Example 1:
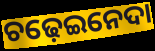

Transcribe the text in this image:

ଚଢ଼େଇନେଦା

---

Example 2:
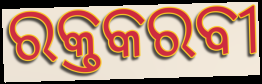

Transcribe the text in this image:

ରକ୍ତକରବୀ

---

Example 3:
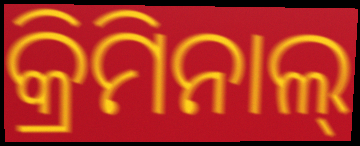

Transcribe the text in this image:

କ୍ରିମିନାଲ୍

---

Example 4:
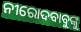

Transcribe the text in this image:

ନୀରୋଦବାବୁଙ୍କୁ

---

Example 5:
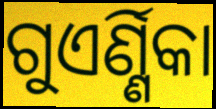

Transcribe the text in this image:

ଗୁଏର୍ଣ୍ଣିକା